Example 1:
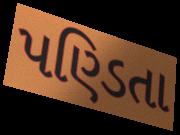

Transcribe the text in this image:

પણ્ડિતા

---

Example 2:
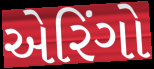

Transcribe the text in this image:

એરિંગો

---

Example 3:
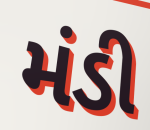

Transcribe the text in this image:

મંડી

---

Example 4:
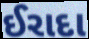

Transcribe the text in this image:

ઈરાદા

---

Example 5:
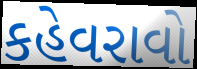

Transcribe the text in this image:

કહેવરાવો